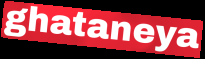
ghataneya